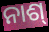
ନାଶ୍